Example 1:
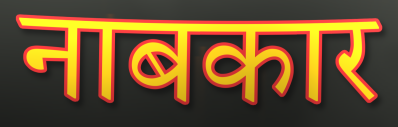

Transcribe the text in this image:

नाबकार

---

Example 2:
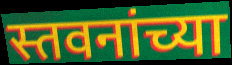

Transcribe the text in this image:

स्तवनांच्या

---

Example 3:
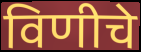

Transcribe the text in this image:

विणीचे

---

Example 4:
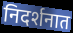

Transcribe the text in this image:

निदर्शनात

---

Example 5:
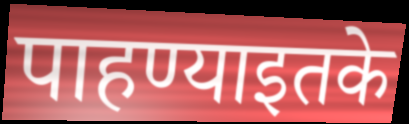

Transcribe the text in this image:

पाहण्याइतके